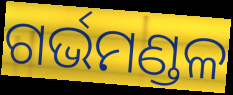
ଗର୍ଭମଣ୍ଡଳ